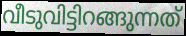
വീടുവിട്ടിറങ്ങുന്നത്